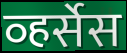
व्हर्सेस